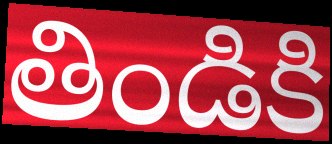
తిండికి